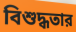
বিশুদ্ধতার